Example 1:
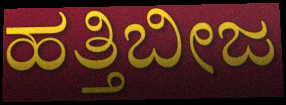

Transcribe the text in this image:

ಹತ್ತಿಬೀಜ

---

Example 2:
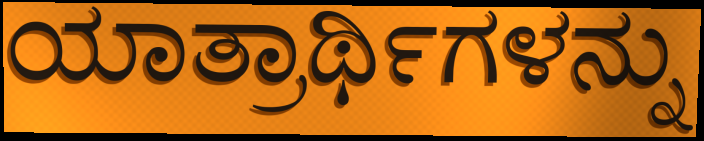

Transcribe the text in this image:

ಯಾತ್ರಾರ್ಥಿಗಳನ್ನು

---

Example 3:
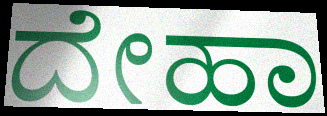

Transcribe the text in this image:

ದೇಹಾ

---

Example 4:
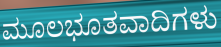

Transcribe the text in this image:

ಮೂಲಭೂತವಾದಿಗಳು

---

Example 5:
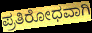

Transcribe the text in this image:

ಪ್ರತಿರೋಧವಾಗಿ